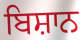
ਬਿਸ਼ਾਨ